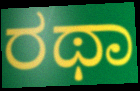
ರಥಾ